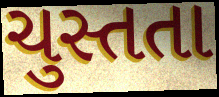
ચુસ્તતા